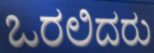
ಒರಲಿದರು